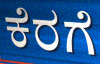
ಕೆರಗೆ